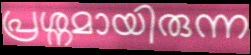
പ്രശ്നമായിരുന്ന